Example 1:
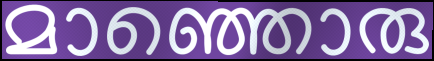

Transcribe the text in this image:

മാഞ്ഞൊരു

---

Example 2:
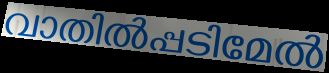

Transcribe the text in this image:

വാതിൽപ്പടിമേൽ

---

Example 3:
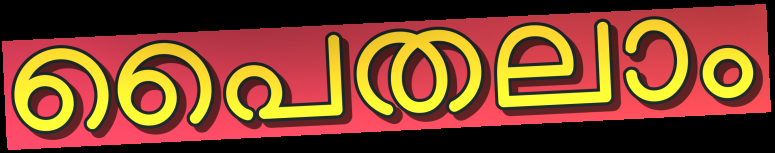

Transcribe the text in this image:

പൈതലാം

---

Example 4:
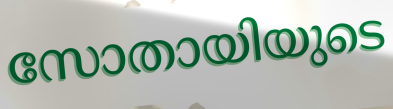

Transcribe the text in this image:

സോതായിയുടെ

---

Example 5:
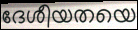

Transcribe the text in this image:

ദേശീയതയെ